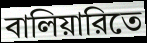
বালিয়ারিতে